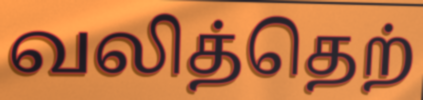
வலித்தெற்